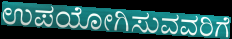
ಉಪಯೋಗಿಸುವವರಿಗೆ